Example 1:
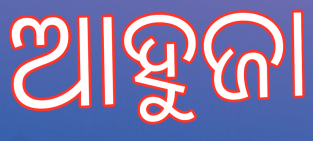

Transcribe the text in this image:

ଆହୁଜା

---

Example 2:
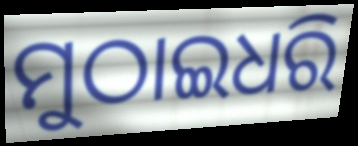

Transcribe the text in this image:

ମୁଠାଇଧରି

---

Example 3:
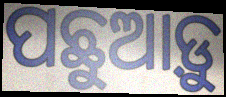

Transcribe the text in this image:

ପଛୁଆଡ଼ୁ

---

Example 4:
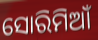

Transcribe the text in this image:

ସୋରିମିଆଁ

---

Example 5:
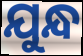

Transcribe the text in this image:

ଯୁନ୍ଧ